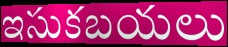
ఇసుకబయలు